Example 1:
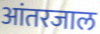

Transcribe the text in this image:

आंतरजाल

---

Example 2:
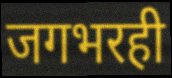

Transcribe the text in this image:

जगभरही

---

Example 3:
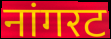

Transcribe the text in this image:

नांगरट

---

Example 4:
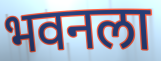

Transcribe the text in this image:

भवनला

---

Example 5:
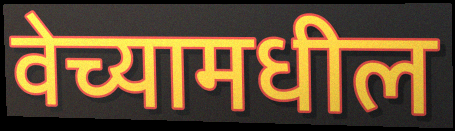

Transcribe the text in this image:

वेच्यामधील